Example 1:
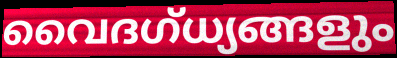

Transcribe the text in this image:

വൈദഗ്ധ്യങ്ങളും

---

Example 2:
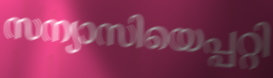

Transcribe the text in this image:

സന്യാസിയെപ്പറ്റി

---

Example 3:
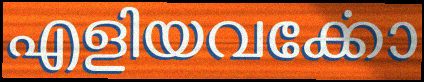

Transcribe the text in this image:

എളിയവൎക്കോ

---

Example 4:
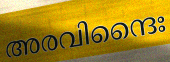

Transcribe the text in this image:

അരവിന്ദൈഃ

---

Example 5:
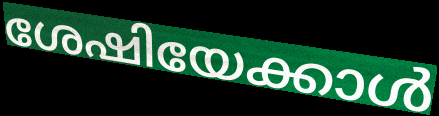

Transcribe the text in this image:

ശേഷിയേക്കാൾ